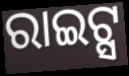
ରାଇଟ୍ସ